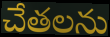
చేతలను